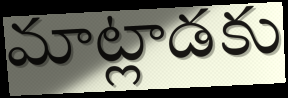
మాట్లాడకు